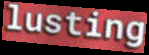
lusting